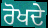
ਰੋਖਦੇ